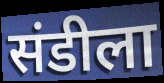
संडीला